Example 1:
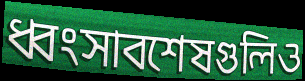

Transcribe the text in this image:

ধ্বংসাবশেষগুলিও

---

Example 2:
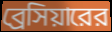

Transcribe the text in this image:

ব্রেসিয়ারের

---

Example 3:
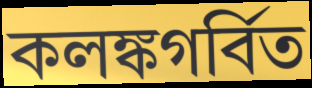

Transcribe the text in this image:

কলঙ্কগর্বিত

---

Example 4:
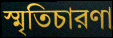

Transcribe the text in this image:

স্মৃতিচারণা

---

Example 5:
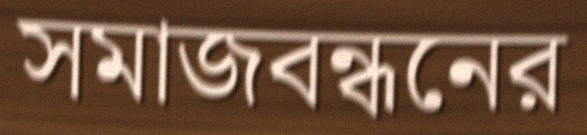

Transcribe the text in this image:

সমাজবন্ধনের